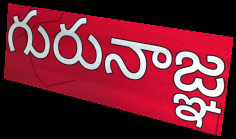
గురునాజ్ఞ